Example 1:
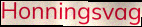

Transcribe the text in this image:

Honningsvag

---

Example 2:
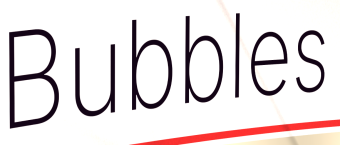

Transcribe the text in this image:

Bubbles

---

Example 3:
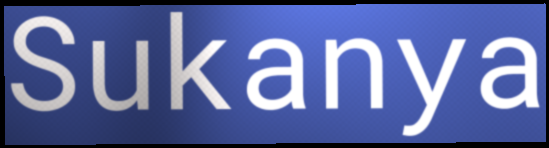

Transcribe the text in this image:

Sukanya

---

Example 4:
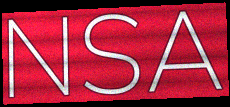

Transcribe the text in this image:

NSA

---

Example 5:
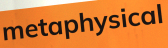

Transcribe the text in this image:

metaphysical